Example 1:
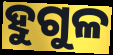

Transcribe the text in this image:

ହୁଗୁଳ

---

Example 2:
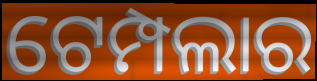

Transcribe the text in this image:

ଟେମ୍ପଲାର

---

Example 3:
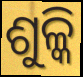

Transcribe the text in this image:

ଶୁଳ୍କି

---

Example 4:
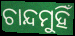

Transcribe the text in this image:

ଚାନ୍ଦମୁହିଁ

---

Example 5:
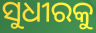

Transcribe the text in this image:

ସୁଧୀରକୁ